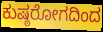
ಕುಷ್ಠರೋಗದಿಂದ